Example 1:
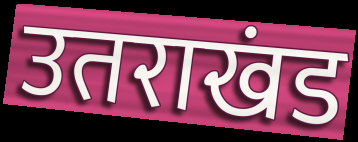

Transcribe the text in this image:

उतराखंड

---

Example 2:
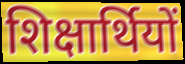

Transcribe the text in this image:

शिक्षार्थियों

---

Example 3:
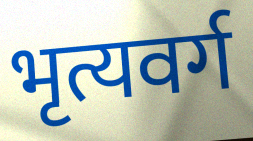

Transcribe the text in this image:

भृत्यवर्ग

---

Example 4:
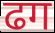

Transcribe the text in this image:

ढग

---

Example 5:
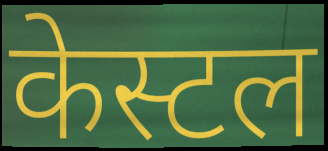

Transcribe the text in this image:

केस्टल